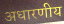
अधारणीय